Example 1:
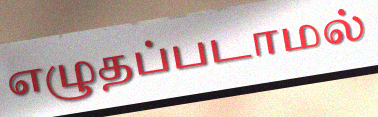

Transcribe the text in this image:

எழுதப்படாமல்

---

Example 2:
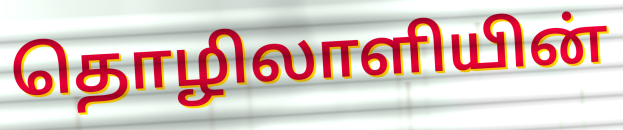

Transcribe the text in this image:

தொழிலாளியின்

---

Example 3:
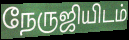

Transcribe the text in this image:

நேருஜியிடம்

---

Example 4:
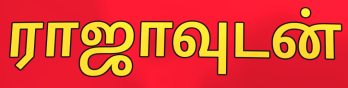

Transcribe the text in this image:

ராஜாவுடன்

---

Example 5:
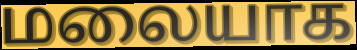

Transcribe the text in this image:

மலையாக